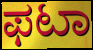
ಫಟಾ